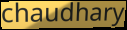
chaudhary